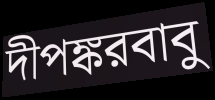
দীপঙ্করবাবু